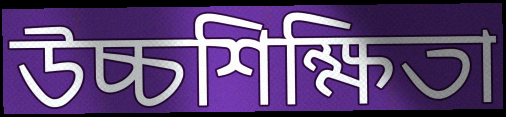
উচ্চশিক্ষিতা